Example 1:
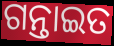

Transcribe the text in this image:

ଗନ୍ତାଇତ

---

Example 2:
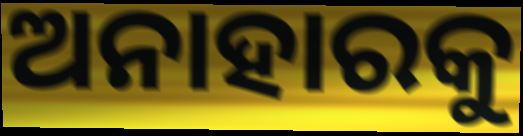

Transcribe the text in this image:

ଅନାହାରକୁ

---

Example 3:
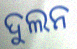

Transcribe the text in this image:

ଦୁଲନ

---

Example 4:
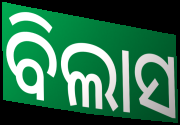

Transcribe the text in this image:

ବିଲାସ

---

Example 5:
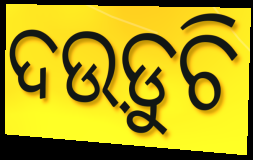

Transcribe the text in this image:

ଦଉଡ଼ୁଚି